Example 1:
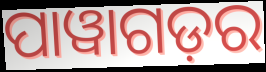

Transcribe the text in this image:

ପାୱାଗଡ଼ର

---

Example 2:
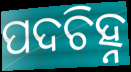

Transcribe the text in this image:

ପଦଚିହ୍ନ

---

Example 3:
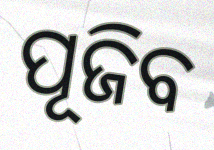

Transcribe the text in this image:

ପୂଜିବ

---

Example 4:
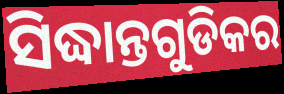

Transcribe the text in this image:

ସିଦ୍ଧାନ୍ତଗୁଡିକର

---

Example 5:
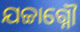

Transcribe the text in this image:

ଯଚ୍ଚାଗ୍ନୌ